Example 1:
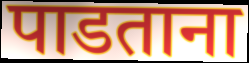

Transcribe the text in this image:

पाडताना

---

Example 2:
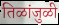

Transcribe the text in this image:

तिळांजुळी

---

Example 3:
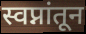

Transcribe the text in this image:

स्वप्नांतून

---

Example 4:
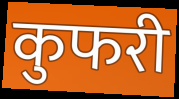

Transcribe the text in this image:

कुफरी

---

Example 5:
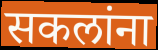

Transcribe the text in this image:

सकलांना